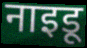
नाइडू